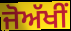
ਜੋਅੱਖੀਂ